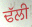
ਢੱਲੀ